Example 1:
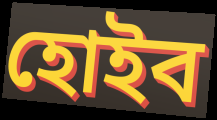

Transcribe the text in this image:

হোইব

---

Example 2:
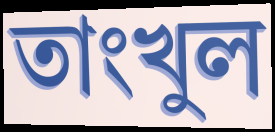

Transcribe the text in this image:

তাংখুল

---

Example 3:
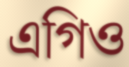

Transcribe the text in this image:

এগিও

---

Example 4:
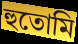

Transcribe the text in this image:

হুতোমি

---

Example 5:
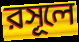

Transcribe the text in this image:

রসূলে